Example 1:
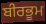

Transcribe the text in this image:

ਬੀਰਭੂਮ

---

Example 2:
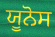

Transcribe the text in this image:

ਯੂਨੋਸ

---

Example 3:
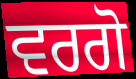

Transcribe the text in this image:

ਵਰਗੋ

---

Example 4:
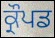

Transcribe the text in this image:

ਕ੍ਰੌਪਡ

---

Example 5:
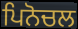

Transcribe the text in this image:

ਪਿਨੋਚਲ